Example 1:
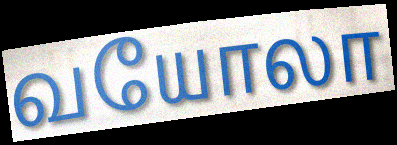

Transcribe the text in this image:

வயோலா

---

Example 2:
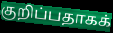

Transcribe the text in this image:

குறிப்பதாகக்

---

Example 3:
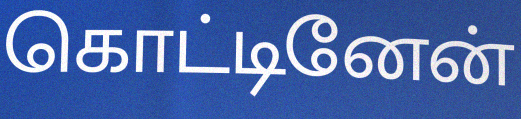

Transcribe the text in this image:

கொட்டினேன்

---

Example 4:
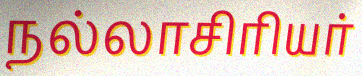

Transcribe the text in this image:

நல்லாசிரியர்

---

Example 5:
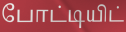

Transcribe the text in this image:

போட்டியிட்